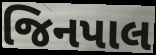
જિનપાલ